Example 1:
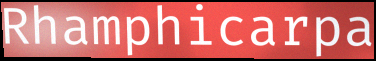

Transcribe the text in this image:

Rhamphicarpa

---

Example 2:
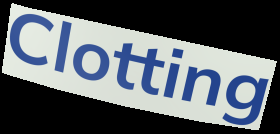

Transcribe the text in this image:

Clotting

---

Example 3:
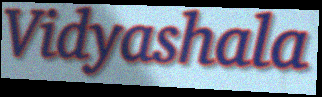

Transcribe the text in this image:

Vidyashala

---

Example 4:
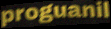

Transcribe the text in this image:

proguanil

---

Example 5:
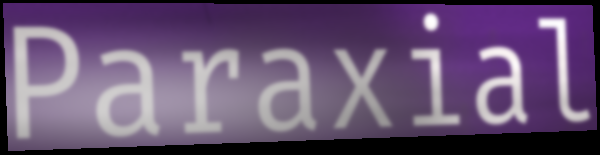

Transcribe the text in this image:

Paraxial